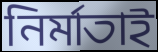
নির্মাতাই